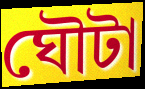
ঘৌটা